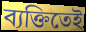
ব্যক্তিতেই